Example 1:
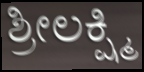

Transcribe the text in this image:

ಶ್ರೀಲಕ್ಷ್ಮಿ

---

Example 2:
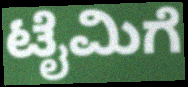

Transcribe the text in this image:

ಟೈಮಿಗೆ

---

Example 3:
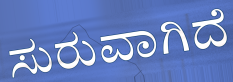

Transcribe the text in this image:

ಸುರುವಾಗಿದೆ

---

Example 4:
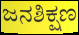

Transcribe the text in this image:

ಜನಶಿಕ್ಷಣ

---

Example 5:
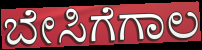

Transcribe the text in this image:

ಬೇಸಿಗೆಗಾಲ